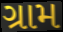
ગ્રામ